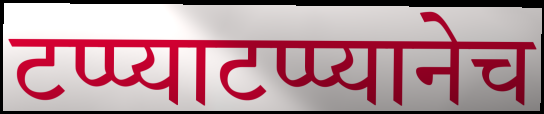
टप्प्याटप्प्यानेच